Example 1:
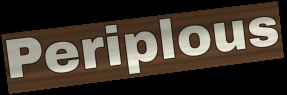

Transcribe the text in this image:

Periplous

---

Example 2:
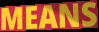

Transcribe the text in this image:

MEANS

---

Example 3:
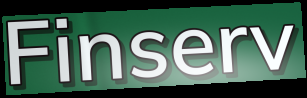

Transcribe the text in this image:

Finserv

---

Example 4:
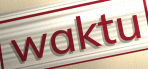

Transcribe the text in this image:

waktu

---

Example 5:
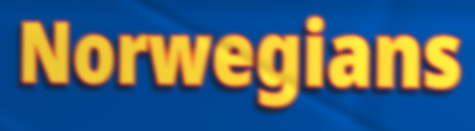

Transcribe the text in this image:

Norwegians